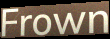
Frown